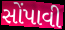
સોંપાવી